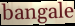
bangale